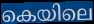
കെയിലെ